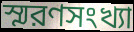
স্মরণসংখ্যা